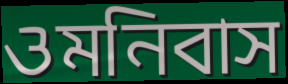
ওমনিবাস